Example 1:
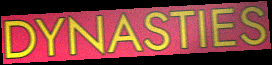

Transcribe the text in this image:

DYNASTIES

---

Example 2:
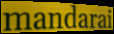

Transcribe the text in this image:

mandarai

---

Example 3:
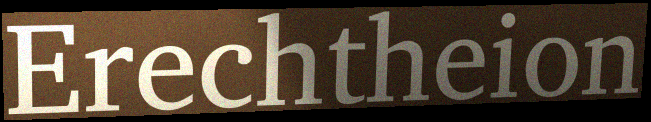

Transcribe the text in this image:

Erechtheion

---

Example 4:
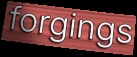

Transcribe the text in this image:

forgings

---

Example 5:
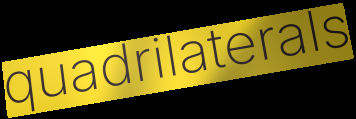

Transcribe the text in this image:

quadrilaterals